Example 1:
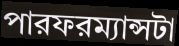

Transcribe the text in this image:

পারফরম্যান্সটা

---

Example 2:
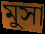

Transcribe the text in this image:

মুসা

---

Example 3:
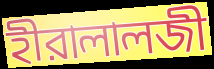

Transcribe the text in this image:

হীরালালজী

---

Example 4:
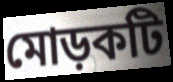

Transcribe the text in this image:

মোড়কটি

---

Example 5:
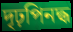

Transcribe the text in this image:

দৃঢ়পিনদ্ধ